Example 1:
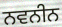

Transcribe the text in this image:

ਨਵਨੀਨ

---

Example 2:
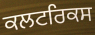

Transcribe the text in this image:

ਕਲਟਰਿਕਸ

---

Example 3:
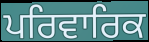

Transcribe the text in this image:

ਪਰਿਵਾਰਿਕ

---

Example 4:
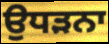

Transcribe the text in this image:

ਉਧੜਨਾ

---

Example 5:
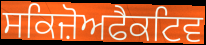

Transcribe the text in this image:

ਸਕਿਜ਼ੋਅਫੈਕਟਿਵ